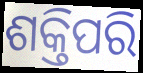
ଶକ୍ତିପରି